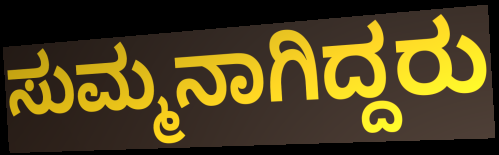
ಸುಮ್ಮನಾಗಿದ್ದರು